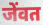
जेंवत